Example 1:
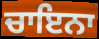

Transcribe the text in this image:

ਚਾਇਨਾ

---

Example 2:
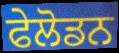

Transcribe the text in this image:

ਫੇਲੋਡਨ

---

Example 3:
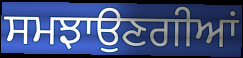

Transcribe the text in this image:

ਸਮਝਾਉਣਗੀਆਂ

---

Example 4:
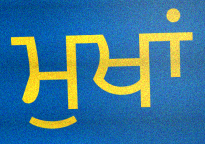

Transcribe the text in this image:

ਮੁਖਾਂ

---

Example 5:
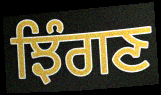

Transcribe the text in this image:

ਝਿੰਗਣ